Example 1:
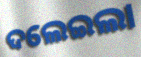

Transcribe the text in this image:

ଦଲେଇଲା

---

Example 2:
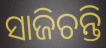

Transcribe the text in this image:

ସାଜିଚନ୍ତି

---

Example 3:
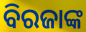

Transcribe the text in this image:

ବିରଜାଙ୍କ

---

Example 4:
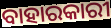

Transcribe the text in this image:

ବାହାରକାରୀ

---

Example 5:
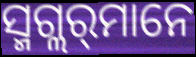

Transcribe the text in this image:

ସ୍ମଗ୍ଲର୍‌ମାନେ